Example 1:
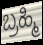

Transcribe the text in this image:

ಬ್ರಹ್ಮಿ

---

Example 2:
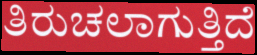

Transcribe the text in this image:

ತಿರುಚಲಾಗುತ್ತಿದೆ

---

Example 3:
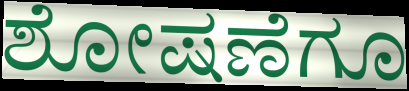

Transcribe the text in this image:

ಶೋಷಣೆಗೂ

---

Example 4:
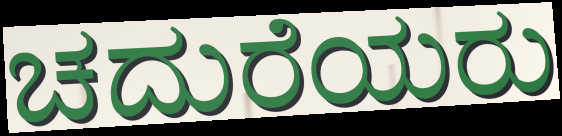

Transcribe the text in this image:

ಚದುರೆಯರು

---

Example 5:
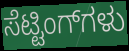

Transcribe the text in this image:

ಸೆಟ್ಟಿಂಗ್‌ಗಳು